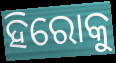
ହିରୋକୁ